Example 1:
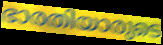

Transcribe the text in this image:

ഭാരതിയാരുടെ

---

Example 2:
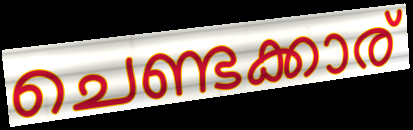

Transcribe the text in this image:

ചെണ്ടക്കാര്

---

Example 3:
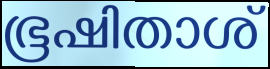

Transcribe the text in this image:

ഭൂഷിതാശ്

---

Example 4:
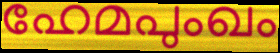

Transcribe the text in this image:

ഹേമപുംഖം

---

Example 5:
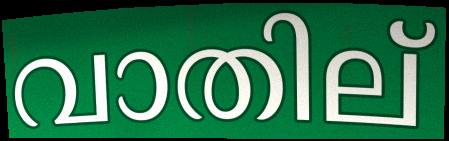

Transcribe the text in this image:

വാതില്